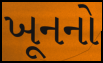
ખૂનનો